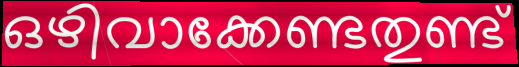
ഒഴിവാക്കേണ്ടതുണ്ട്